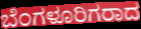
ಬೆಂಗಳೂರಿಗರಾದ